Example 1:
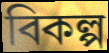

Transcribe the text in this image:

বিকল্প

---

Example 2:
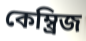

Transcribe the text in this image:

কেম্ব্ৰিজ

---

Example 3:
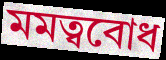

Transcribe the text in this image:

মমত্ববোধ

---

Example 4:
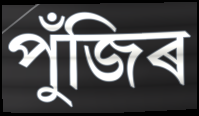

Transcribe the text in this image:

পুঁজিৰ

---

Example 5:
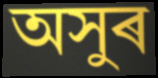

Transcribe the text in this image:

অসুৰ